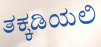
ತಕ್ಕಡಿಯಲಿ